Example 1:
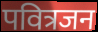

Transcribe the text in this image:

पवित्रजन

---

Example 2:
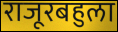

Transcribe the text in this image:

राजूरबहुला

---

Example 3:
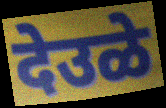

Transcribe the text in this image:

देउळे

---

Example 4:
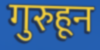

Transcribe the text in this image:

गुरुहून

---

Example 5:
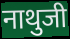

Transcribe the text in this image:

नाथुजी